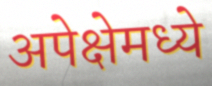
अपेक्षेमध्ये